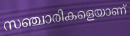
സഞ്ചാരികളെയാണ്